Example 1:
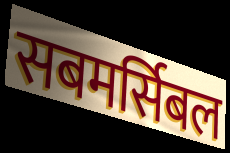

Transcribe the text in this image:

सबमर्सिबल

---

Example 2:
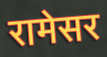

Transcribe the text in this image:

रामेसर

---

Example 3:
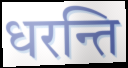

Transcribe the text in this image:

धरन्ति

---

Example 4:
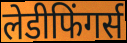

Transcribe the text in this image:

लेडीफिंगर्स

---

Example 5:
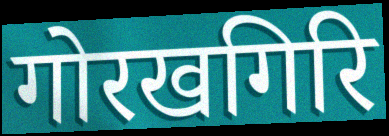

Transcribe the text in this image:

गोरखगिरि